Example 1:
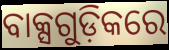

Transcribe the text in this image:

ବାକ୍ସଗୁଡ଼ିକରେ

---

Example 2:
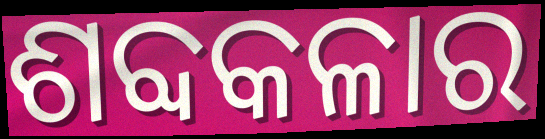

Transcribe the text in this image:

ଶବ୍ଦକଳାର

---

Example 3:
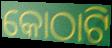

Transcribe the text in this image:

କୋଠାଟି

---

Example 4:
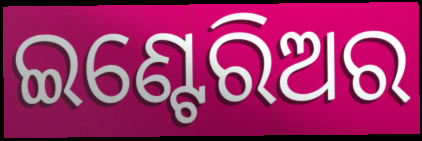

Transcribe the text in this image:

ଇଣ୍ଟେରିଅର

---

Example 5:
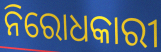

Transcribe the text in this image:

ନିରୋଧକାରୀ